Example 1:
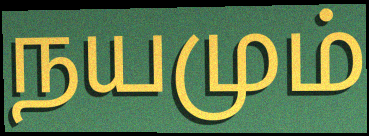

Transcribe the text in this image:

நயமும்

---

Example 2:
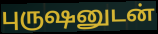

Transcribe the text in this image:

புருஷனுடன்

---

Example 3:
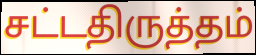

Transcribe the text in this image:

சட்டதிருத்தம்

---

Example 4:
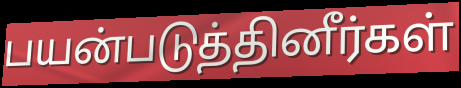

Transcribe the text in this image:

பயன்படுத்தினீர்கள்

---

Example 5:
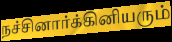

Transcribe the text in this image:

நச்சினார்க்கினியரும்